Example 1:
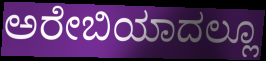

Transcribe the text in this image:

ಅರೇಬಿಯಾದಲ್ಲೂ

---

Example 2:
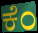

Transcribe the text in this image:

ಕೆಂ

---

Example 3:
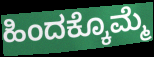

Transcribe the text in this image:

ಹಿಂದಕ್ಕೊಮ್ಮೆ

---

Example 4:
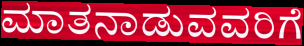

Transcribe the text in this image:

ಮಾತನಾಡುವವರಿಗೆ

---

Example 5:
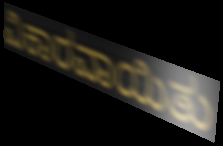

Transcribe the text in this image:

ವಿಕಾರವಾಯಿತು